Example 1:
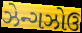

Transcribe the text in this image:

ઝેન્ગઝોઉ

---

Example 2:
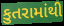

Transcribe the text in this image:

કુતરામાંથી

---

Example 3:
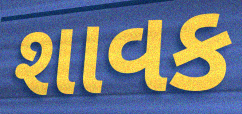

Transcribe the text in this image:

શાવક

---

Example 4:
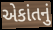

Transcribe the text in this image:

એકાંતનું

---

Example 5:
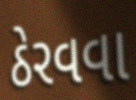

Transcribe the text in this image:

ઠેરવવા